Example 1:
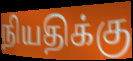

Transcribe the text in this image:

நியதிக்கு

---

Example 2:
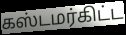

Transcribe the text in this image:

கஸ்டமர்கிட்ட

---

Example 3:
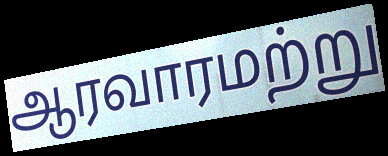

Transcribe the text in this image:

ஆரவாரமற்று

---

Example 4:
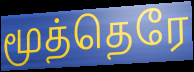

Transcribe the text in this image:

மூத்தெரே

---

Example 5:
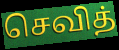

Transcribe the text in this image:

செவித்